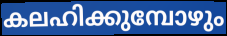
കലഹിക്കുമ്പോഴും